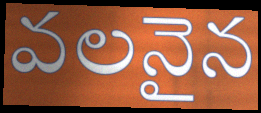
వలనైన